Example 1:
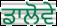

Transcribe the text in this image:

ਡਾਲੋਵੇ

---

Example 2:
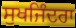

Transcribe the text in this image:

ਸੁਖਜਿੰਦਰਾ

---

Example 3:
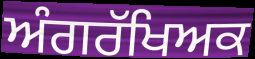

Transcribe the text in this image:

ਅੰਗਰੱਖਿਅਕ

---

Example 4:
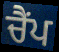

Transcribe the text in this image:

ਚੈਂਪ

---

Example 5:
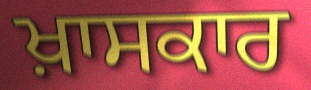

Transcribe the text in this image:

ਖ਼ਾਸਕਾਰ